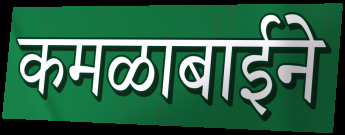
कमळाबाईने